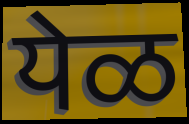
येळ